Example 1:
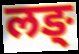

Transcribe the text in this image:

लङ्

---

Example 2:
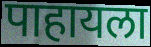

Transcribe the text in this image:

पाहायला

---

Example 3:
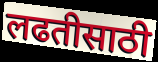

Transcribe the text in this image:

लढतीसाठी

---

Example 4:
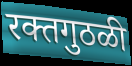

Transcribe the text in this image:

रक्तगुठळी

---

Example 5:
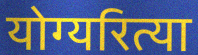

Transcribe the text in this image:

योग्यरित्या